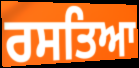
ਰਸਤਿਆ